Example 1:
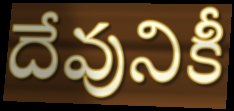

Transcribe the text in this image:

దేవునికీ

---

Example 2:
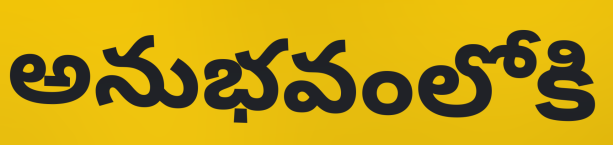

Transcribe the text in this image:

అనుభవంలోకి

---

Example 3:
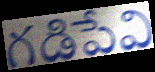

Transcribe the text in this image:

గడిపేవి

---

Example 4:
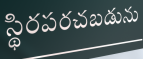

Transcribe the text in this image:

స్థిరపరచబడును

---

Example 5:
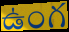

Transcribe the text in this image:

ఉంగ